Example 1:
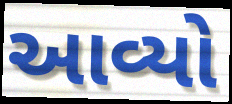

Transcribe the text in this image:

આવ્યો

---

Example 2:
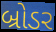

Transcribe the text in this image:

બ્રોડર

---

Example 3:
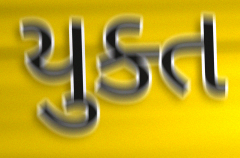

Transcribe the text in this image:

યુક્ત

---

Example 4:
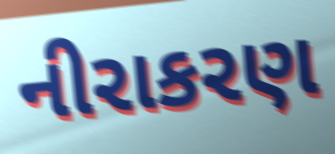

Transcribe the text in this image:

નીરાકરણ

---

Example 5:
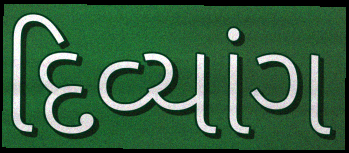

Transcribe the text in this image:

દિવ્યાંગ